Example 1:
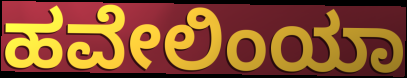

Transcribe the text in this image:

ಹವೇಲಿಂಯಾ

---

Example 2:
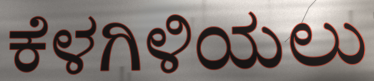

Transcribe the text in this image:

ಕೆಳಗಿಳಿಯಲು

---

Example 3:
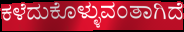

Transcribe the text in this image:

ಕಳೆದುಕೊಳ್ಳುವಂತಾಗಿದೆ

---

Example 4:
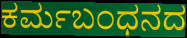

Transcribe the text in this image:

ಕರ್ಮಬಂಧನದ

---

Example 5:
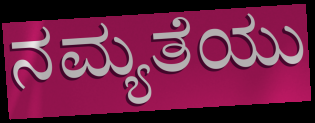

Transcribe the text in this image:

ನಮ್ಯತೆಯು